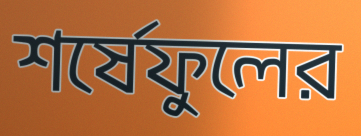
শর্ষেফুলের